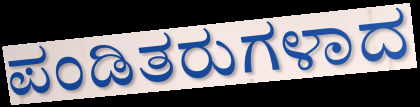
ಪಂಡಿತರುಗಳಾದ